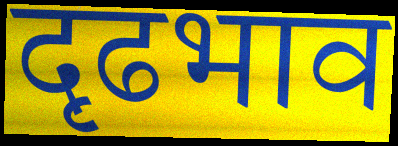
दृढभाव